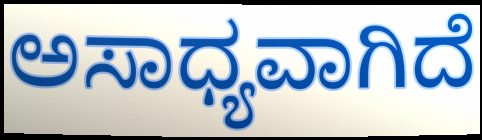
ಅಸಾಧ್ಯವಾಗಿದೆ